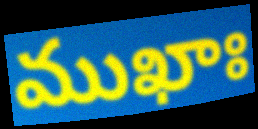
ముఖాః